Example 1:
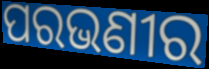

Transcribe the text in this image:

ପରଭଣୀର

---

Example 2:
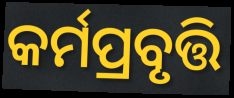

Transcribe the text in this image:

କର୍ମପ୍ରବୃତ୍ତି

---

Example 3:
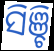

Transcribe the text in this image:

ସିଞ୍ଚି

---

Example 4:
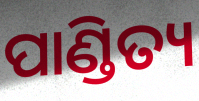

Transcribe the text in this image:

ପାଣ୍ଡିତ୍ୟ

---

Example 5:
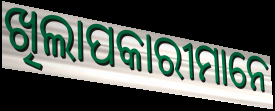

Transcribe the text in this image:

ଖିଲାପକାରୀମାନେ